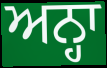
ਅਨ੍ਹਾ